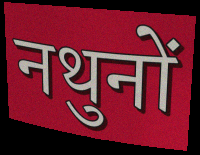
नथुनों